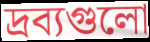
দ্রব্যগুলো